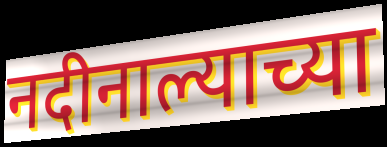
नदीनाल्याच्या